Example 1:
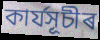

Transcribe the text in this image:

কাৰ্যসূচীৰ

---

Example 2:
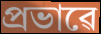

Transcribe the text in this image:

প্ৰভাৱে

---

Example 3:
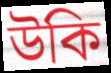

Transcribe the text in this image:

উকি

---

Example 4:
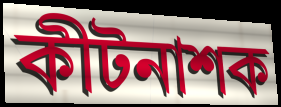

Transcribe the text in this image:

কীটনাশক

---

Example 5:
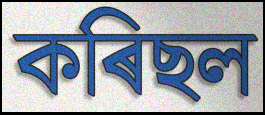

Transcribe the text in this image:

কৰিছল